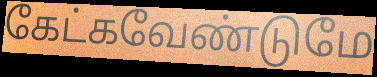
கேட்கவேண்டுமே